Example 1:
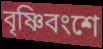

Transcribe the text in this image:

বৃষ্ণিবংশে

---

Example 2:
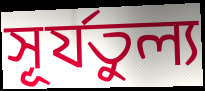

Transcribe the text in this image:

সূর্যতুল্য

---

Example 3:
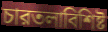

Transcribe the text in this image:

চারতলাবিশিষ্ট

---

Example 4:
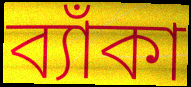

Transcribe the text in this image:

ব্যাঁকা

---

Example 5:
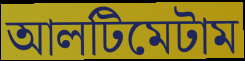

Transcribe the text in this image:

আলটিমেটাম